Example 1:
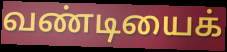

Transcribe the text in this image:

வண்டியைக்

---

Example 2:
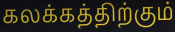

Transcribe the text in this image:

கலக்கத்திற்கும்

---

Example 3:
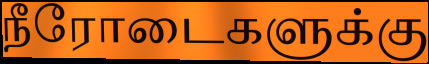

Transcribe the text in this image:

நீரோடைகளுக்கு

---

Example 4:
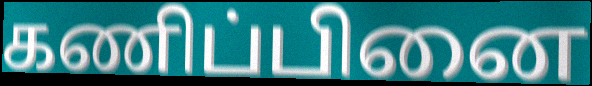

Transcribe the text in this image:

கணிப்பினை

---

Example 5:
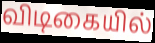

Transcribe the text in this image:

விடிகையில்